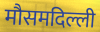
मौसमदिल्ली